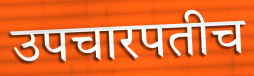
उपचारपतीच